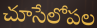
చూసేలోపల